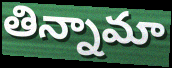
తిన్నామా